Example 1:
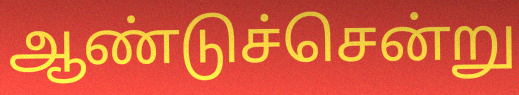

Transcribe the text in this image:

ஆண்டுச்சென்று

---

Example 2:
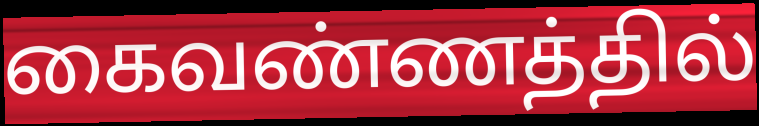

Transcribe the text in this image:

கைவண்ணத்தில்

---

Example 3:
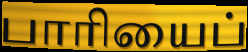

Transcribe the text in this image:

பாரியைப்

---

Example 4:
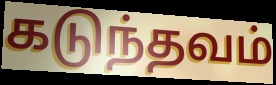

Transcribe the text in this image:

கடுந்தவம்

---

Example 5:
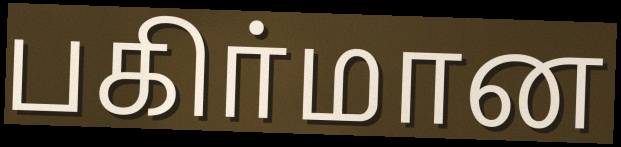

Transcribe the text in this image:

பகிர்மான